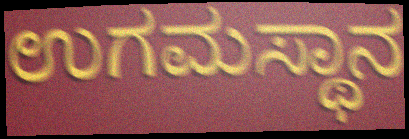
ಉಗಮಸ್ಥಾನ